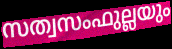
സത്വസംഫുല്ലയും